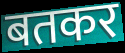
बतकर